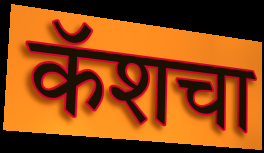
कॅशचा